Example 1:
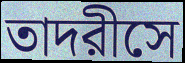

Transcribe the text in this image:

তাদরীসে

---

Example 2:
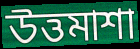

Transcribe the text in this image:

উত্তমাশা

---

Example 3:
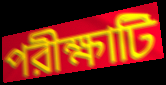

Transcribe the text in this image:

পরীক্ষাটি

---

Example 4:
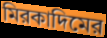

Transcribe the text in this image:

মিরকাদিমের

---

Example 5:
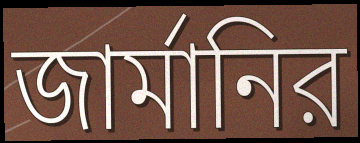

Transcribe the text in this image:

জার্মানির